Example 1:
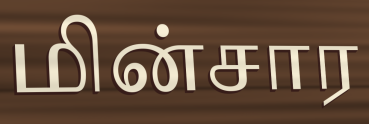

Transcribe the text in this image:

மின்சார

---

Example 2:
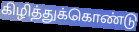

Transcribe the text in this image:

கிழித்துக்கொண்டு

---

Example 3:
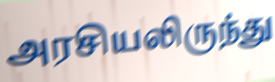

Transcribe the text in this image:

அரசியலிருந்து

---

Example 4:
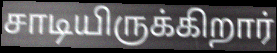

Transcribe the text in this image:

சாடியிருக்கிறார்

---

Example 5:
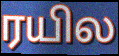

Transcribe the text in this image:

ரயில